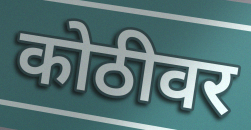
कोठीवर